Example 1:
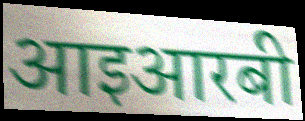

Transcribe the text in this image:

आइआरबी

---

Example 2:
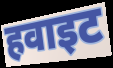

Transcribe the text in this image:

हवाइट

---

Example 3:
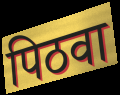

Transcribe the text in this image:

पिठवा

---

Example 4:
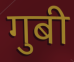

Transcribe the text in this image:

गुबी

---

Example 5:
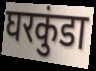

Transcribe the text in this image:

घरकुंडा